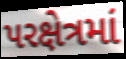
પરક્ષેત્રમાં